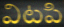
విటపి